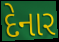
દેનાર